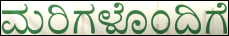
ಮರಿಗಳೊಂದಿಗೆ